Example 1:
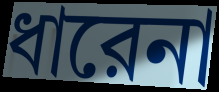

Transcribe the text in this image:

ধারেনা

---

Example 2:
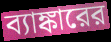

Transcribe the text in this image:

ব্যাঙ্কারের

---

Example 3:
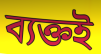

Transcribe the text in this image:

ব্যক্তই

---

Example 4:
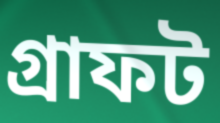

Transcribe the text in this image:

গ্রাফট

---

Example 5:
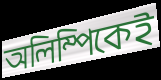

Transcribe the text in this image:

অলিম্পিকেই